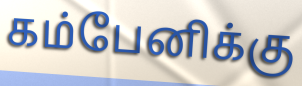
கம்பேனிக்கு